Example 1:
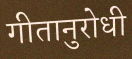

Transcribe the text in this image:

गीतानुरोधी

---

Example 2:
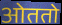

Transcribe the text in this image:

ओततो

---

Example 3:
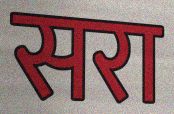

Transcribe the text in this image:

सरा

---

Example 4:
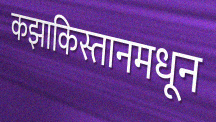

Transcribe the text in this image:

कझाकिस्तानमधून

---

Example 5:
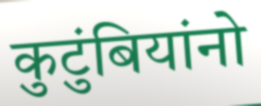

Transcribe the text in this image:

कुटुंबियांनो